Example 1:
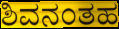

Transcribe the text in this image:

ಶಿವನಂತಹ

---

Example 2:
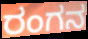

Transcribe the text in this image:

ರಂಗನ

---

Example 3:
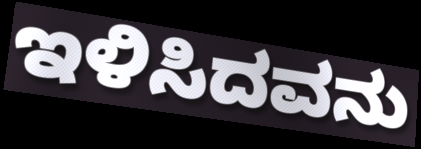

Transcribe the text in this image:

ಇಳಿಸಿದವನು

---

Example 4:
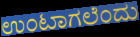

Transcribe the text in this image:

ಉಂಟಾಗಲೆಂದು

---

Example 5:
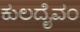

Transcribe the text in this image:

ಕುಲದೈವಂ